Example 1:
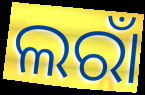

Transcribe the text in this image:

ଲରାଁ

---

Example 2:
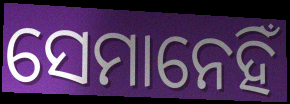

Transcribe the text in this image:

ସେମାନେହିଁ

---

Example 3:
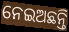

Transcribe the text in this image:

ନେଇଅଛନ୍ତି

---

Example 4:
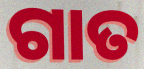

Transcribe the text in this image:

ଗାତ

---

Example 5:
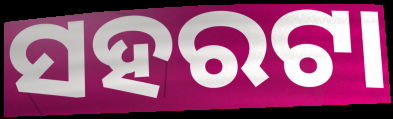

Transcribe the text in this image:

ସହରଟା